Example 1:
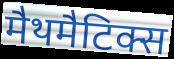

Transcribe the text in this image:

मैथमैटिक्स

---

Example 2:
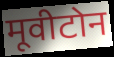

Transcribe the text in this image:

मूवीटोन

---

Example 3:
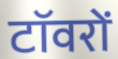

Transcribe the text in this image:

टॉवरों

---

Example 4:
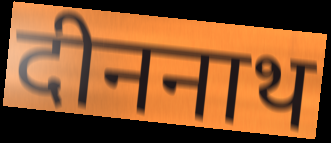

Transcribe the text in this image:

दीननाथ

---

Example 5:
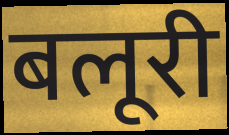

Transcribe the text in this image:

बलूरी